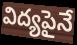
విద్యపైనే